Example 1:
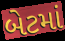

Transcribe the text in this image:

બેટમાં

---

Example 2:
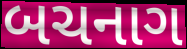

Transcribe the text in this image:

બચનાગ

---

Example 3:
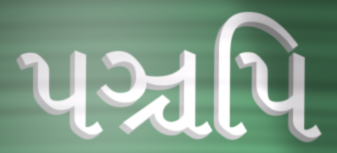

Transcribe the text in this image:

પઞ્ચપિ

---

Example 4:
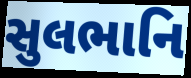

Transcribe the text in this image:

સુલભાનિ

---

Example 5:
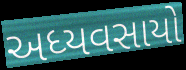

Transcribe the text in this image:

અધ્યવસાયો